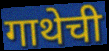
गाथेची